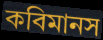
কবিমানস